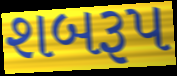
શબરૂપ